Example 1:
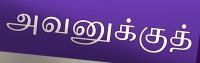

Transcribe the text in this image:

அவனுக்குத்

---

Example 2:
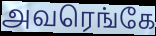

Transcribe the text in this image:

அவரெங்கே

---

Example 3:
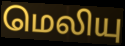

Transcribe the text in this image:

மெலியு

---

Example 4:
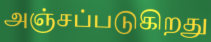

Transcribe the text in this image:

அஞ்சப்படுகிறது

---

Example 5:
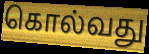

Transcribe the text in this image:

கொல்வது